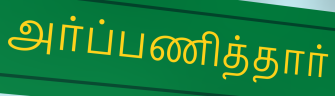
அர்ப்பணித்தார்